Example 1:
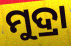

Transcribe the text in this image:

ମୁଦ୍ରା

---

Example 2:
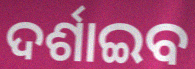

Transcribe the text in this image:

ଦର୍ଶାଇବ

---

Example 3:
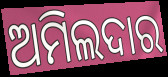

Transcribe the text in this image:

ଅମିଲଦାର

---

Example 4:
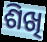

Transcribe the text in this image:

ଶିଖି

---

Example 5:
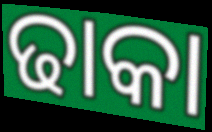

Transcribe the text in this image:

ଢାକା